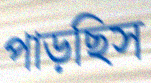
পাড়ছিস